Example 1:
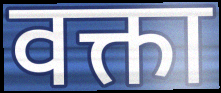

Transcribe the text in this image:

वक्ता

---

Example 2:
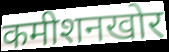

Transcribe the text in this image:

कमीशनखोर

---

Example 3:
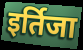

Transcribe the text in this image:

इर्तिजा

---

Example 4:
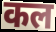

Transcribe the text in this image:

कल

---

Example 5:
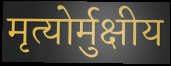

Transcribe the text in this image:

मृत्‍योर्मुक्षीय